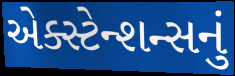
એક્સ્ટેન્શન્સનું